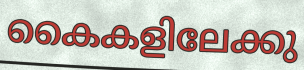
കൈകളിലേക്കു